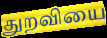
துறவியை